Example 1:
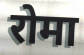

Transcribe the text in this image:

रोमा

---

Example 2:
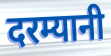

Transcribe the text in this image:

दरम्यानी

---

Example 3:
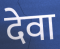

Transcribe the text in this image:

देवा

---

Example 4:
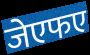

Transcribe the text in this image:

जेएफए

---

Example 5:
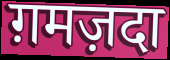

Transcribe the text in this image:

ग़मज़दा